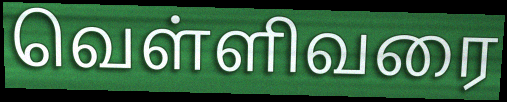
வெள்ளிவரை